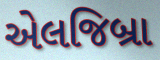
એલજિબ્રા